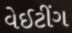
વેઈટીંગ